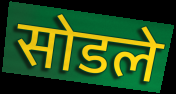
सोडले